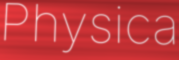
Physica